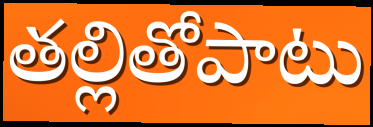
తల్లితోపాటు